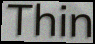
Thin